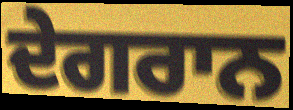
ਦੇਗਰਾਨ